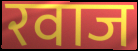
रवाज